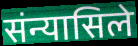
संन्यासिले